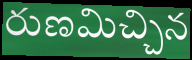
రుణమిచ్చిన